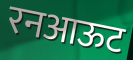
रनआऊट